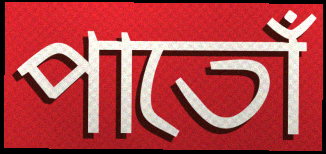
পাতোঁ